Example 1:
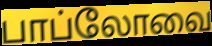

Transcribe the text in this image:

பாப்லோவை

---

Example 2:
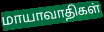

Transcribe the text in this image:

மாயாவாதிகள்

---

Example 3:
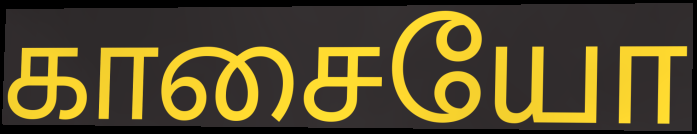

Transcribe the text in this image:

காசையோ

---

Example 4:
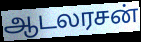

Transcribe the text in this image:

ஆடலரசன்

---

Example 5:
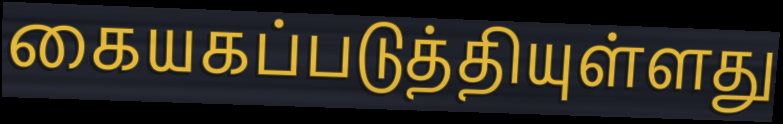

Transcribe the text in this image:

கையகப்படுத்தியுள்ளது